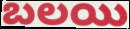
బలయి